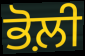
ਭੋਲ਼ੀ